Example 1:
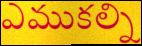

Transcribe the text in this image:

ఎముకల్ని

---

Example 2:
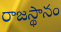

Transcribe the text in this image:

రాజస్థానం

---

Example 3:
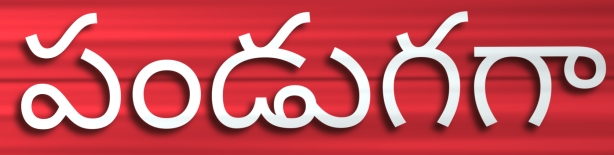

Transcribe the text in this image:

పండుగగా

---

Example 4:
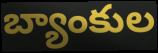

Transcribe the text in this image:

బ్యాంకుల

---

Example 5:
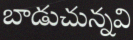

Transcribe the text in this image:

బాడుచున్నవి